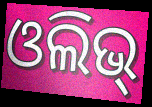
ଓଲିଭ୍